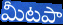
మీటపా